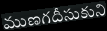
ముణగదీసుకుని